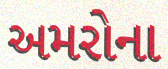
અમરોના